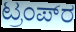
ಟ್ರಂಪ್‍ರ